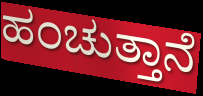
ಹಂಚುತ್ತಾನೆ